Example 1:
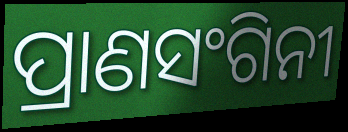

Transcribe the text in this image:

ପ୍ରାଣସଂଗିନୀ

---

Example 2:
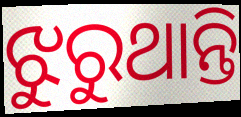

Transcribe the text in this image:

ଝୁରୁଥାନ୍ତି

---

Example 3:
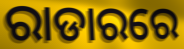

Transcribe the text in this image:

ରାଡାରରେ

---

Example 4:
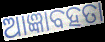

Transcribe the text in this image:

ଆଜ୍ଞାବହତା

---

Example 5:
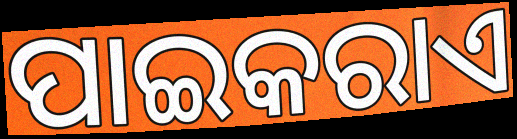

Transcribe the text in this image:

ପାଇକରାଏ